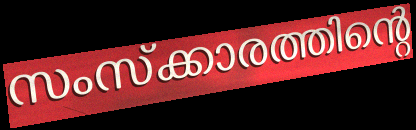
സംസ്‌ക്കാരത്തിന്റെ